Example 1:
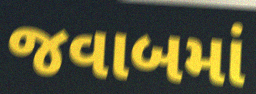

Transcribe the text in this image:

જવાબમાં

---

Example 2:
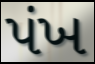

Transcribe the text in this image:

પંખ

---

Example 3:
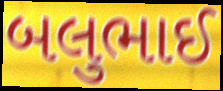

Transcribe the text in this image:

બલુભાઈ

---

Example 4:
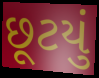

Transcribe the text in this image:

છૂટયું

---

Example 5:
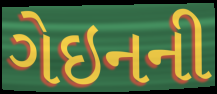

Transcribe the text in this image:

ગેઇનની